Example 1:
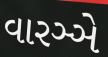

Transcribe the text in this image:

વારઞ્ઞે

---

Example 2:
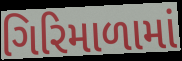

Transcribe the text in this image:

ગિરિમાળામાં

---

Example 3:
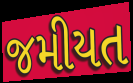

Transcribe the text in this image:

જમીયત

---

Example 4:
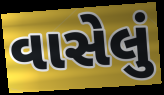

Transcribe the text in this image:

વાસેલું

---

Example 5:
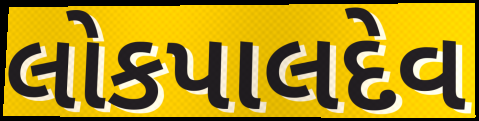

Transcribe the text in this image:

લોકપાલદેવ